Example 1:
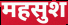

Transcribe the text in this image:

महसुश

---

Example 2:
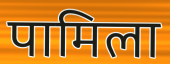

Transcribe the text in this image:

पामिला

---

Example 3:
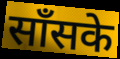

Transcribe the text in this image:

साँसके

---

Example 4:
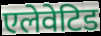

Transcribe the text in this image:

एलेवेटिड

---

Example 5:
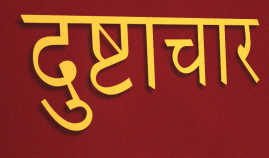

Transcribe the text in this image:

दुष्टाचार